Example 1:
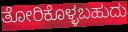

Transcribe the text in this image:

ತೋರಿಕೊಳ್ಳಬಹುದು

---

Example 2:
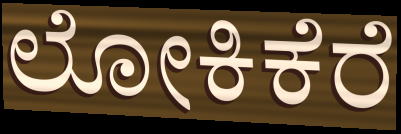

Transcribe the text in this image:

ಲೋಕಿಕೆರೆ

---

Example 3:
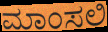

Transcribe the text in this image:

ಮಾಂಸಲಿ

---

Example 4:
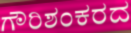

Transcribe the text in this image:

ಗೌರಿಶಂಕರದ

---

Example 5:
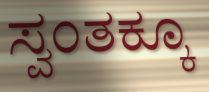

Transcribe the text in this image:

ಸ್ವಂತಕ್ಕೂ